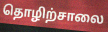
தொழிற்சாலை